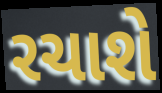
રચાશે